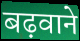
बढ़वाने